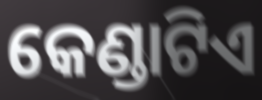
କେଣ୍ଡାଟିଏ